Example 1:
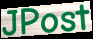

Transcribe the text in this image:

JPost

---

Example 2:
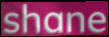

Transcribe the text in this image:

shane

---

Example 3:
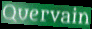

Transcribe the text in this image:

Quervain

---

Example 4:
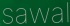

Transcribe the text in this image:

sawal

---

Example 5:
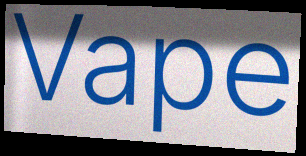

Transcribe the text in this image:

Vape